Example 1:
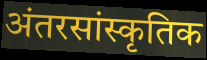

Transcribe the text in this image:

अंतरसांस्कृतिक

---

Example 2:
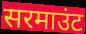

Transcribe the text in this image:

सरमाउंट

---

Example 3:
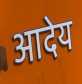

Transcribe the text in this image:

आदेय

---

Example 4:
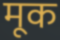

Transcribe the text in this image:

मूक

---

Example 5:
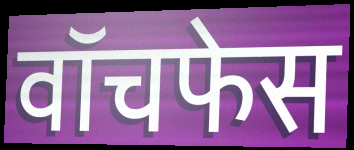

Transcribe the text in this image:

वॉचफेस